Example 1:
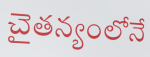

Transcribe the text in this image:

చైతన్యంలోనే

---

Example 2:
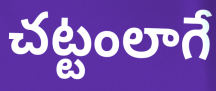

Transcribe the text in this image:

చట్టంలాగే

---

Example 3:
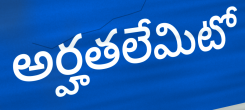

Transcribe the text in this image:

అర్హతలేమిటో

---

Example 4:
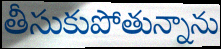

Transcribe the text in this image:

తీసుకుపోతున్నాను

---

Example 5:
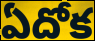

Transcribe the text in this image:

ఏదోక